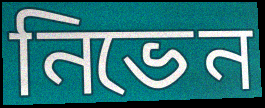
নিভেন